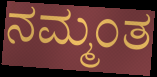
ನಮ್ಮಂತ